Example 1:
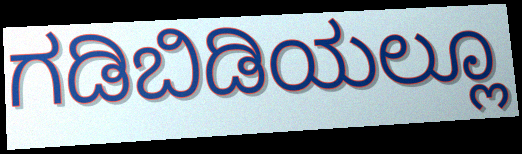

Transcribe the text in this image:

ಗಡಿಬಿಡಿಯಲ್ಲೂ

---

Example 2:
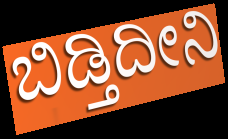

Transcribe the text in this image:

ಬಿಡ್ತಿದೀನಿ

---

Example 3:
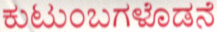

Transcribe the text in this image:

ಕುಟುಂಬಗಳೊಡನೆ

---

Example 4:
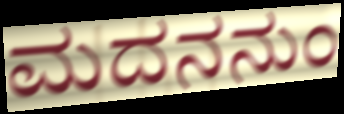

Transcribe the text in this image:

ಮದನನುಂ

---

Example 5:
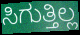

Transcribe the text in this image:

ಸಿಗುತ್ತಿಲ್ಲ